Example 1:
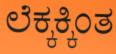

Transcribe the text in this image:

ಲೆಕ್ಕಕ್ಕಿಂತ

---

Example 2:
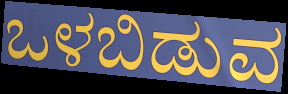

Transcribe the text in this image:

ಒಳಬಿಡುವ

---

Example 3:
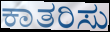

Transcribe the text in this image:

ಕಾತರಿಸು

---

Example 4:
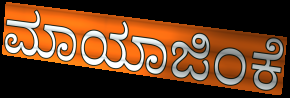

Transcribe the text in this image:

ಮಾಯಾಜಿಂಕೆ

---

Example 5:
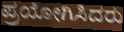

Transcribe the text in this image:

ಪ್ರಯೋಗಿಸಿದರು